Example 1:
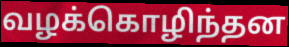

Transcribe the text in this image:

வழக்கொழிந்தன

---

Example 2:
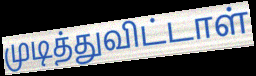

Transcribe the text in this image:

முடித்துவிட்டாள்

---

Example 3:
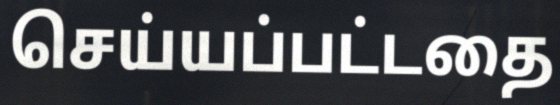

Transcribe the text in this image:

செய்யப்பட்டதை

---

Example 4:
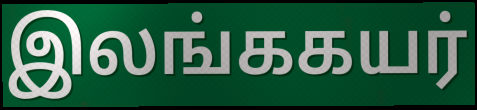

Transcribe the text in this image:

இலங்ககயர்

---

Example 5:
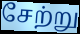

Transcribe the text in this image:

சேற்று